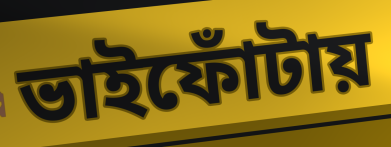
ভাইফোঁটায়